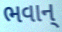
ભવાન્